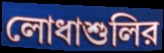
লোধাশুলির